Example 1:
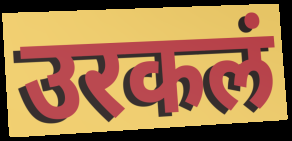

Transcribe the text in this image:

उरकलं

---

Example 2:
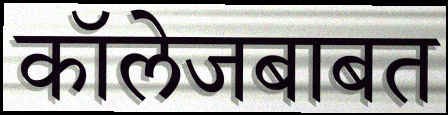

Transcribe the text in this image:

कॉलेजबाबत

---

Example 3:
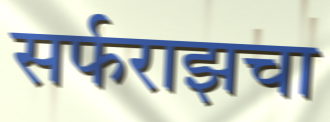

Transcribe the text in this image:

सर्फराझचा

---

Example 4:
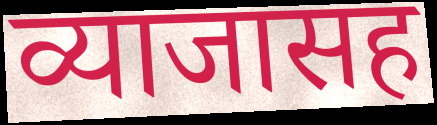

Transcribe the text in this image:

व्याजासह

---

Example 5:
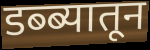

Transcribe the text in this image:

डब्ब्यातून